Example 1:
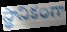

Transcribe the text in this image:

స్థానికంగా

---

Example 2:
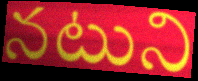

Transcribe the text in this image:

నటుని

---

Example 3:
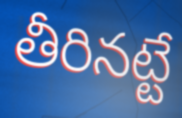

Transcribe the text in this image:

తీరినట్టే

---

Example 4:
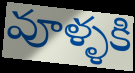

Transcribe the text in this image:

వూళ్ళకి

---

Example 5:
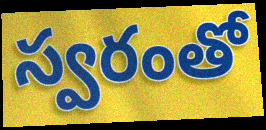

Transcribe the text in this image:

స్వరంతో